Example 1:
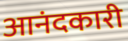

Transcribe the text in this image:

आनंदकारी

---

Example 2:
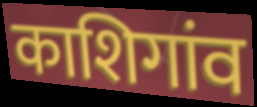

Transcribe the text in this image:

काशिगांव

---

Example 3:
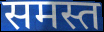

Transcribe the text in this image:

समस्त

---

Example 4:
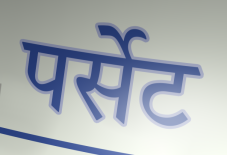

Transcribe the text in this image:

पर्सेट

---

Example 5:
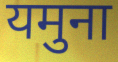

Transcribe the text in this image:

यमुना